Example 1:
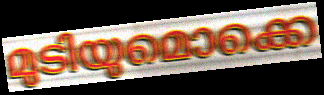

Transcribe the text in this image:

മുടിയുമൊക്കെ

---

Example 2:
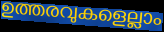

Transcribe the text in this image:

ഉത്തരവുകളെല്ലാം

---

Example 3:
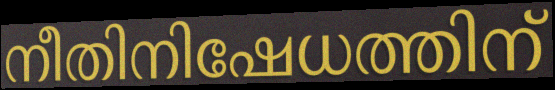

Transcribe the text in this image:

നീതിനിഷേധത്തിന്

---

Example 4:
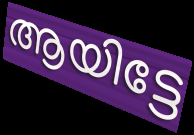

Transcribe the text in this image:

ആയിട്ടേ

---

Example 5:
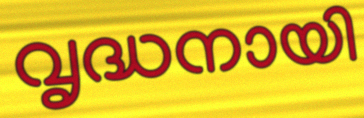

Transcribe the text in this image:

വൃദ്ധനായി